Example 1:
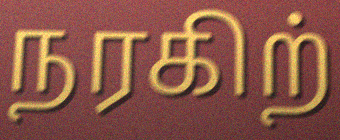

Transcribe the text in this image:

நரகிற்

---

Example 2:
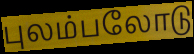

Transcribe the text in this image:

புலம்பலோடு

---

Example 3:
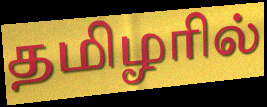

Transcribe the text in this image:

தமிழரில்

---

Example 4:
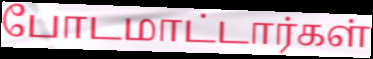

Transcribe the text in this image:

போடமாட்டார்கள்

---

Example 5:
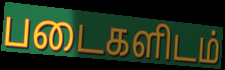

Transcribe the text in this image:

படைகளிடம்